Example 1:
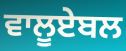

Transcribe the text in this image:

ਵਾਲੂਏਬਲ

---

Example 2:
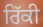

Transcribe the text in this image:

ਰਿੱਕੀ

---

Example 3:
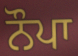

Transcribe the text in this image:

ਨੌਪਾ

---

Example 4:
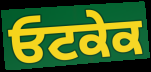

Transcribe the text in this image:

ਓਟਕੇਕ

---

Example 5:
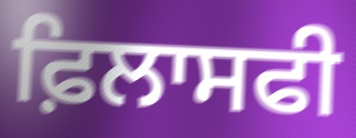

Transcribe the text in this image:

ਫ਼ਿਲਾਸਫੀ